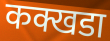
कक्खडा